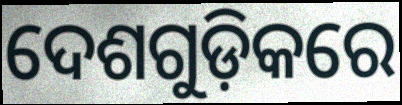
ଦେଶଗୁଡ଼ିକରେ